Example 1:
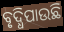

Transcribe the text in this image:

ବୃଦ୍ଧିପାଉଛି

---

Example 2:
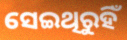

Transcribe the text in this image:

ସେଇଥିରୁହିଁ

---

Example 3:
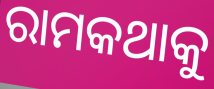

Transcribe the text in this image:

ରାମକଥାକୁ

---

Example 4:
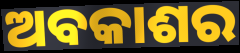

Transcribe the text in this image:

ଅବକାଶର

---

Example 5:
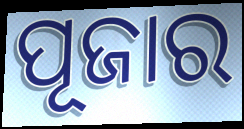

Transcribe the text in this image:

ପୂଜାର